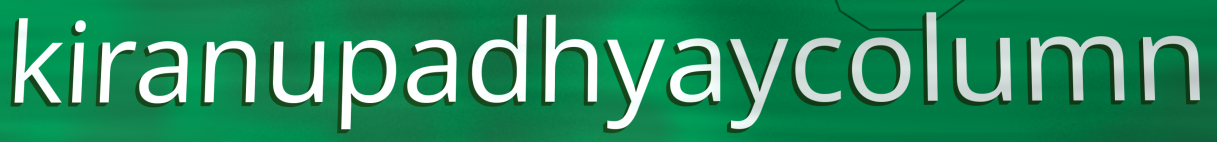
kiranupadhyaycolumn